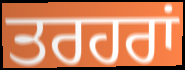
ਤਰਹਰਾਂ